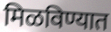
मिळविण्यात